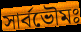
সার্বভৌমঃ